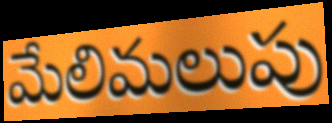
మేలిమలుపు